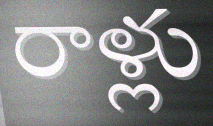
రాళ్లు